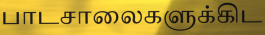
பாடசாலைகளுக்கிட